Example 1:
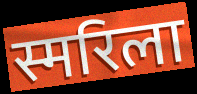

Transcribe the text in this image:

स्मरिला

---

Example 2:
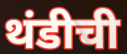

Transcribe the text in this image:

थंडीची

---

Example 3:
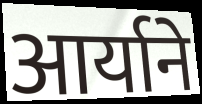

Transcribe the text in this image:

आर्याने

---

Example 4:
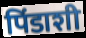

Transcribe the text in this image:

पिंडाशी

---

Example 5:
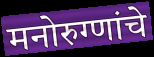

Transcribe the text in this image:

मनोरुग्णांचे